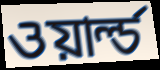
ওয়ার্ল্ড